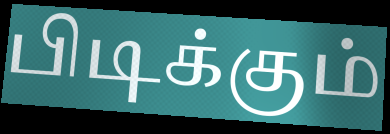
பிடிக்கும்